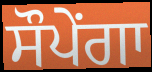
ਸੌਪੇਂਗਾ